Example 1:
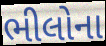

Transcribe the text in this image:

ભીલોના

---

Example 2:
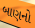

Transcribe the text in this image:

બાણનો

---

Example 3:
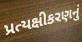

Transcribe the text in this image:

પ્રત્યક્ષીકરણનું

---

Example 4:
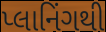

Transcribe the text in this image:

પ્લાનિંગથી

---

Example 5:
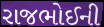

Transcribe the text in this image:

રાજભોઈની